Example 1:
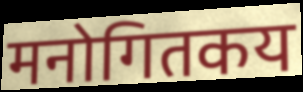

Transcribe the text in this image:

मनोगितकय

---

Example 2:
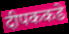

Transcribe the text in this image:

दीपककडे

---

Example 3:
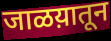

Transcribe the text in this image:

जाळय़ातून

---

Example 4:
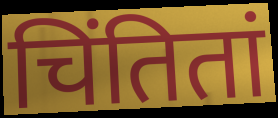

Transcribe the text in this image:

चिंतितां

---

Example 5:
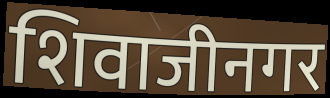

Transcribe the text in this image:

शिवाजीनगर